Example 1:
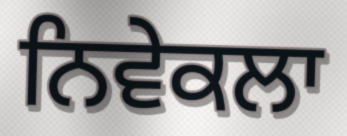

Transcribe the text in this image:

ਨਿਵੇਕਲਾ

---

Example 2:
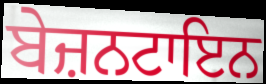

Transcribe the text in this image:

ਬੇਜ਼ਨਟਾਇਨ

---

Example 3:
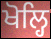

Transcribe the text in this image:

ਖੋਲ੍ਹਿ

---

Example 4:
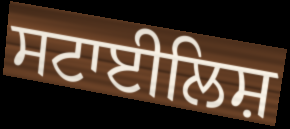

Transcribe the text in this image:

ਸਟਾਈਲਿਸ਼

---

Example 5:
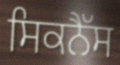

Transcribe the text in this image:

ਸਿਕਨੈੱਸ